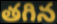
తగిన